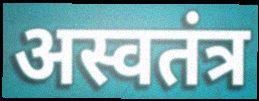
अस्वतंत्र